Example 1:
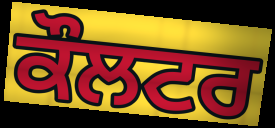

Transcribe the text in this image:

ਕੌਲਟਰ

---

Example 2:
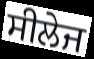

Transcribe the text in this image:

ਸੀਲੇਜ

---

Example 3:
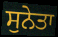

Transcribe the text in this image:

ਸੁਨੇਤਾ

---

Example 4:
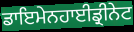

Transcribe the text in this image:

ਡਾਇਮੇਨਹਾਈਡ੍ਰੀਨੇਟ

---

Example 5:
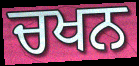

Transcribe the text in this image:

ਚਖਨ